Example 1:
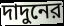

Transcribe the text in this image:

দাদুনের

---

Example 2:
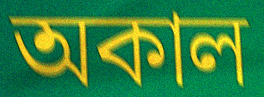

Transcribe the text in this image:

অকাল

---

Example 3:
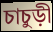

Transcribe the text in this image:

চাচুড়ী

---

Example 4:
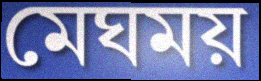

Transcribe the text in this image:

মেঘময়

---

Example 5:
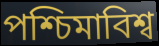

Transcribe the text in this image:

পশ্চিমাবিশ্ব